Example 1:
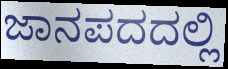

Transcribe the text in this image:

ಜಾನಪದದಲ್ಲಿ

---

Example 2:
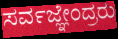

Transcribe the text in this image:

ಸರ್ವಜ್ಞೇಂದ್ರರು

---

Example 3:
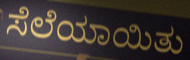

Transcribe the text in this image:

ಸೆಲೆಯಾಯಿತು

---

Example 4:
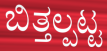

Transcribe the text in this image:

ಬಿತ್ತಲ್ಪಟ್ಟ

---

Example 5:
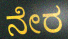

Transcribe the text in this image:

ನೇರ